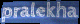
pralekha